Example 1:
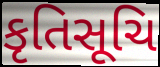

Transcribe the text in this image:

કૃતિસૂચિ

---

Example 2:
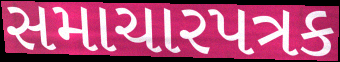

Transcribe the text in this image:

સમાચારપત્રક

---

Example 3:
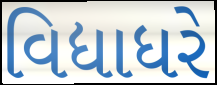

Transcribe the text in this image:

વિદ્યાધરે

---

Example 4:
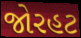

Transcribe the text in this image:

જોરહટ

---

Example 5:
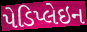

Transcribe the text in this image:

પેડિપ્લેઇન